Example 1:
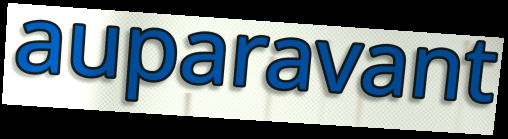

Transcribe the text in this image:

auparavant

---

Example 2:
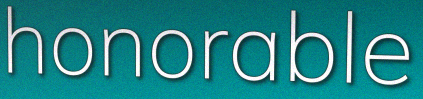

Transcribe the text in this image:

honorable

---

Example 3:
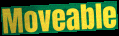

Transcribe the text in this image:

Moveable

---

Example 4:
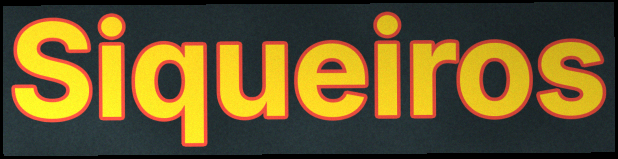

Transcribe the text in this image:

Siqueiros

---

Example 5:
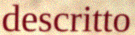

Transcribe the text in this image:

descritto